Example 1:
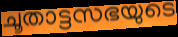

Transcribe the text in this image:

ചൂതാട്ടസഭയുടെ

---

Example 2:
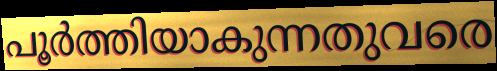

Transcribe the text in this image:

പൂർത്തിയാകുന്നതുവരെ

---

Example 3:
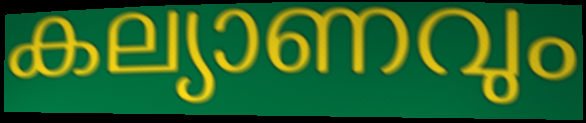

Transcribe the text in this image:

കല്യാണവും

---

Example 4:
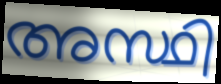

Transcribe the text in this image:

അസ്ഥി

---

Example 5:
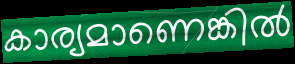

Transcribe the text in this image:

കാര്യമാണെങ്കിൽ